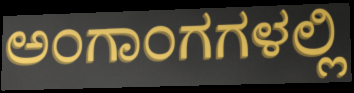
ಅಂಗಾಂಗಗಳಲ್ಲಿ